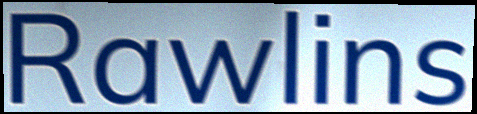
Rawlins